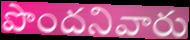
పొందనివారు